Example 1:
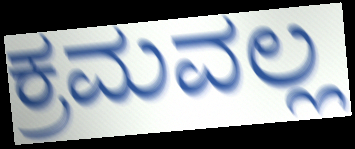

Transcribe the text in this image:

ಕ್ರಮವಲ್ಲ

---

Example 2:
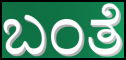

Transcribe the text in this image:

ಬಂತೆ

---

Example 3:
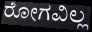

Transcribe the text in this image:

ರೋಗವಿಲ್ಲ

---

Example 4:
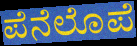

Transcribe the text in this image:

ಪೆನೆಲೊಪೆ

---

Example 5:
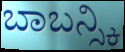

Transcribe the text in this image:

ಬಾಬನ್ಸ್ಕಿ